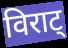
विराट्